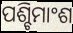
ପଶ୍ଚିମାଂଶ